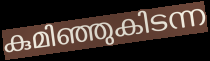
കുമിഞ്ഞുകിടന്ന